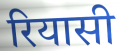
रियासी